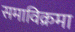
समाविक्रमा